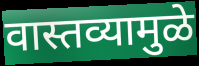
वास्तव्यामुळे